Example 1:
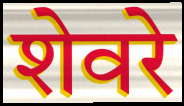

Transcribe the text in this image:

शेवरे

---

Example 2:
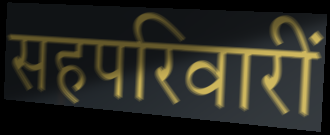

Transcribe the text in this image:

सहपरिवारीं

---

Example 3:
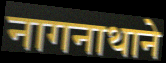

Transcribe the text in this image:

नागनाथाने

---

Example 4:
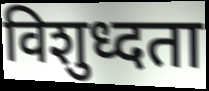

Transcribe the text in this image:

विशुध्दता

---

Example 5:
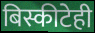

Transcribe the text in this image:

बिस्कीटेही